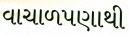
વાચાળપણાથી